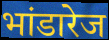
भांडारेज